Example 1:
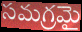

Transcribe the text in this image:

సమగ్రమై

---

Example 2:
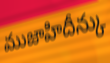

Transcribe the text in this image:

ముజాహిదీన్కు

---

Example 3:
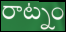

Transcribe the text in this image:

రాట్నం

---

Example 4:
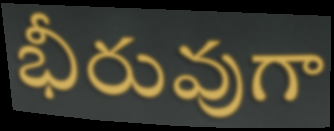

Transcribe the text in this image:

భీరువుగా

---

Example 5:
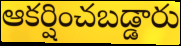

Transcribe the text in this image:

ఆకర్షించబడ్డారు